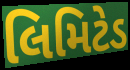
લિમિટેડ